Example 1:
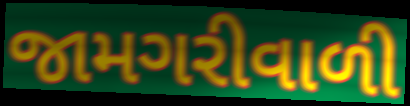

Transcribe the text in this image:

જામગરીવાળી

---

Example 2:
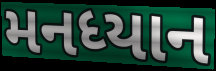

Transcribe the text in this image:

મનધ્યાન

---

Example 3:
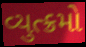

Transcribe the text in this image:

વ્યુત્ક્રમો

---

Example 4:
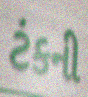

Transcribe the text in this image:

ટંકની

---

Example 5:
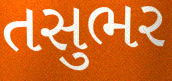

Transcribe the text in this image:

તસુભર